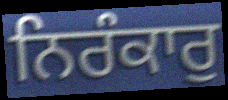
ਨਿਰੰਕਾਰੁ